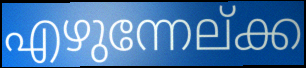
എഴുന്നേല്ക്ക